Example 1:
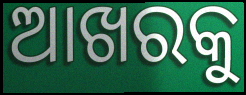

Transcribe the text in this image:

ଆଖରକୁ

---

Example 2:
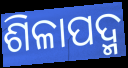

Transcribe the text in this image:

ଶିଳାପଦ୍ମ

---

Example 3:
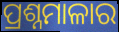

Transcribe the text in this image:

ପ୍ରଶ୍ନମାଳାର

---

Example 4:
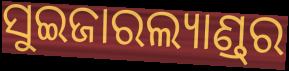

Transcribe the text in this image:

ସୁଇଜାରଲ୍ୟାଣ୍ଡ୍‌ର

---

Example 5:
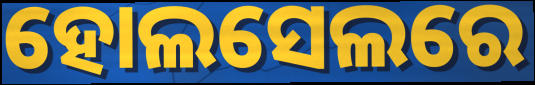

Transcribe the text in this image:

ହୋଲସେଲରେ